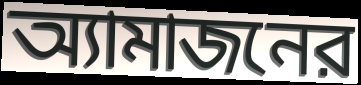
অ্যামাজনের